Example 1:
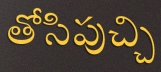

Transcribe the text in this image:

తోసిపుచ్చి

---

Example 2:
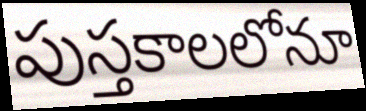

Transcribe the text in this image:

పుస్తకాలలోనూ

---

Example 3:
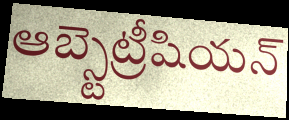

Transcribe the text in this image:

ఆబ్స్టెట్రీషియన్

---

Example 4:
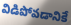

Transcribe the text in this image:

విడిపోవడానికే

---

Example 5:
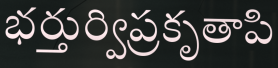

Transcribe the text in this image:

భర్తుర్విప్రకృతాపి